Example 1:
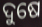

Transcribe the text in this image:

ଦୁଷେ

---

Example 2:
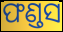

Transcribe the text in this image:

ଫଣ୍ଡସ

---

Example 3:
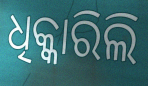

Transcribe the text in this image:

ଧିକ୍କାରିଲି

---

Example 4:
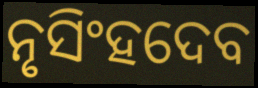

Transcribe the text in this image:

ନୃସିଂହଦେବ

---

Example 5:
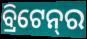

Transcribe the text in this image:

ବ୍ରିଟେନ୍‌ର